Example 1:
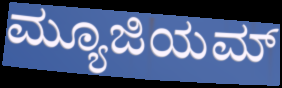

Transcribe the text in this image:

ಮ್ಯೂಜಿಯಮ್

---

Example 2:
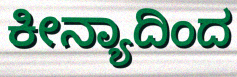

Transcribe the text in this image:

ಕೀನ್ಯಾದಿಂದ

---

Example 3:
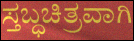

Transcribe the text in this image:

ಸ್ತಬ್ಧಚಿತ್ರವಾಗಿ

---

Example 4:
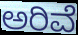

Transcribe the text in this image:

ಅರಿವೆ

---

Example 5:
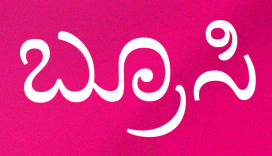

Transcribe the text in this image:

ಬ್ರೂಸಿ